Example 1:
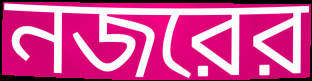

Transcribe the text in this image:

নজরের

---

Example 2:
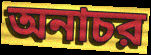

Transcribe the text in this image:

অনাচর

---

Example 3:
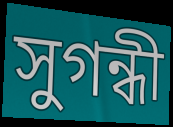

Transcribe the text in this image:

সুগন্ধী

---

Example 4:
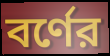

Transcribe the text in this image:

বর্ণের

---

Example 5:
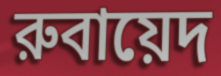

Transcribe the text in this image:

রুবায়েদ